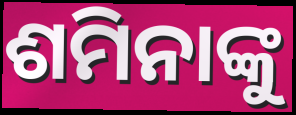
ଶମିନାଙ୍କୁ